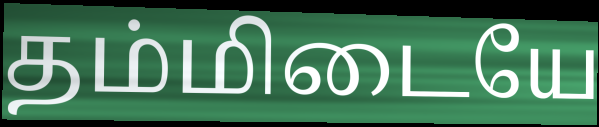
தம்மிடையே